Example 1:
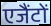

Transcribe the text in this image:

एजैंटों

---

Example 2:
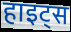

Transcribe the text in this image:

हाइट्स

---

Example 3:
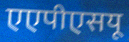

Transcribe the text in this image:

एएपीएसयू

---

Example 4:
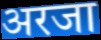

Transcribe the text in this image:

अरजा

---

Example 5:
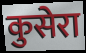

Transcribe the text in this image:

कुसेरा